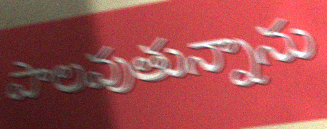
పాలవుతున్నాను